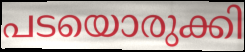
പടയൊരുക്കി